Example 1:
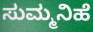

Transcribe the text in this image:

ಸುಮ್ಮನಿಹೆ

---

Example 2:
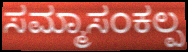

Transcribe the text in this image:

ಸಮ್ಮಾಸಂಕಲ್ಪ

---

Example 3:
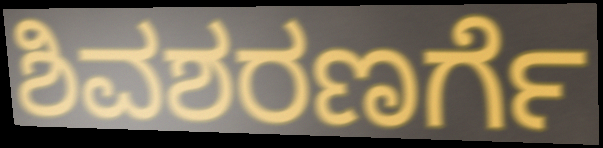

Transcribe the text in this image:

ಶಿವಶರಣರ್ಗೆ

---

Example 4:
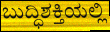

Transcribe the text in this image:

ಬುದ್ಧಿಶಕ್ತಿಯಲ್ಲಿ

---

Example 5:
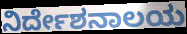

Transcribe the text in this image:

ನಿರ್ದೇಶನಾಲಯ